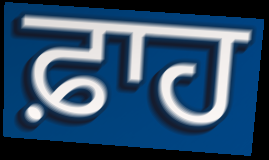
ਫ਼ਾਹ